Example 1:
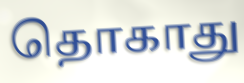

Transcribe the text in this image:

தொகாது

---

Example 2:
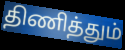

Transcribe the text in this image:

திணித்தும்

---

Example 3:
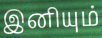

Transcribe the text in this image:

இனியும்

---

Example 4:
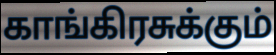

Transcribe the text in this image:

காங்கிரசுக்கும்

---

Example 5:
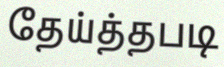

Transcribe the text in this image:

தேய்த்தபடி